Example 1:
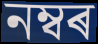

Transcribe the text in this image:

নম্বৰ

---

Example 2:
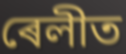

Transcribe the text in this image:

ৰেলীত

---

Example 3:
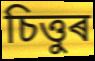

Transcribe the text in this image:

চিত্তুৰ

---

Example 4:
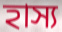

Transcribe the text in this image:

হাস্য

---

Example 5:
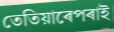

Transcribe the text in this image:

তেতিয়াৰেপৰাই